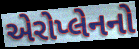
એરોપ્લેનનો